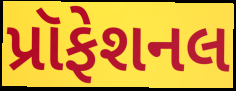
પ્રૉફેશનલ